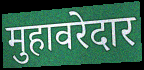
मुहावरेदार